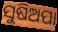
ସୁଷିଅପା